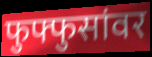
फुफ्फुसांवर